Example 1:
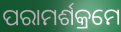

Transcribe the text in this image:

ପରାମର୍ଶକ୍ରମେ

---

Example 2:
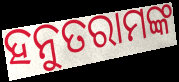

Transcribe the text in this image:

ହନୁତରାମଙ୍କ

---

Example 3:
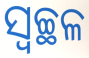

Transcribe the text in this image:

ସ୍ୱଚ୍ଛଳ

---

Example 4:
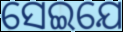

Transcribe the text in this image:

ସେଇଯେ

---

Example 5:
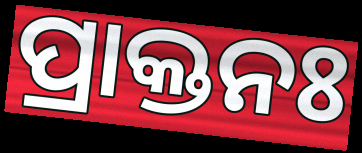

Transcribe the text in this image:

ପ୍ରାକ୍ତନଃ